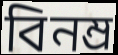
বিনম্র